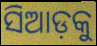
ସିଆଡ଼କୁ